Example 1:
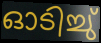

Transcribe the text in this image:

ഓടിച്ചു്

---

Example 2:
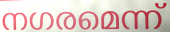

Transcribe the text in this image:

നഗരമെന്ന്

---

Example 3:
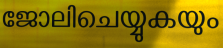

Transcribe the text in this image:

ജോലിചെയ്യുകയും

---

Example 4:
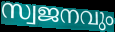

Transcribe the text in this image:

സ്വജനവും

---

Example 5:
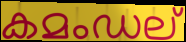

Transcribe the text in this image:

കമംഡല്